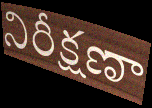
నిరీక్షణా